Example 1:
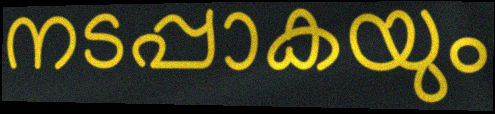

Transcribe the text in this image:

നടപ്പാകയും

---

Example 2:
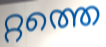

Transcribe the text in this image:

റ്റത്തെ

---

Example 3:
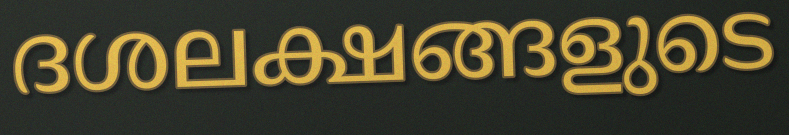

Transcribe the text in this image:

ദശലക്ഷങ്ങളുടെ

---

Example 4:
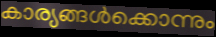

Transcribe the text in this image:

കാര്യങ്ങൾക്കൊന്നും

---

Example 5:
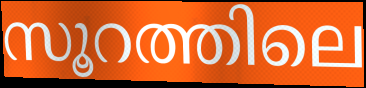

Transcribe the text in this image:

സൂറത്തിലെ